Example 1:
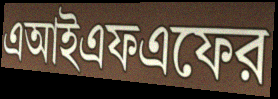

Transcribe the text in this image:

এআইএফএফের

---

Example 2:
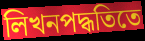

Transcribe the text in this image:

লিখনপদ্ধতিতে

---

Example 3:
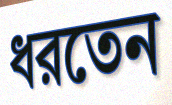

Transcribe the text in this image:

ধরতেন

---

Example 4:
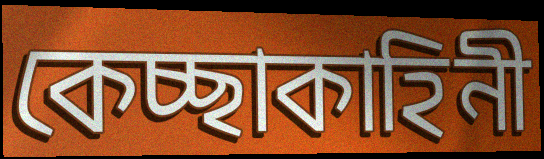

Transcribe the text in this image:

কেচ্ছাকাহিনী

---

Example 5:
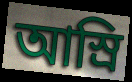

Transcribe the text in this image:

আস্রি